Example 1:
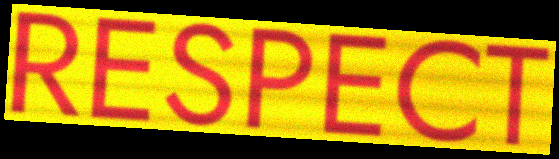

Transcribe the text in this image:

RESPECT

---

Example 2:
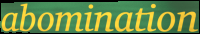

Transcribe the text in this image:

abomination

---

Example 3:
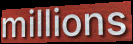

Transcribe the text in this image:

millions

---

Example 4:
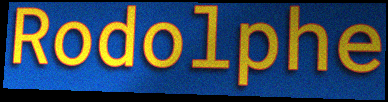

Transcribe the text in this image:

Rodolphe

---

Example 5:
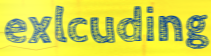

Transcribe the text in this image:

exlcuding